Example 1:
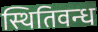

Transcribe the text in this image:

स्थितिवन्ध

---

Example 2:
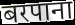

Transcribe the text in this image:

बरपाना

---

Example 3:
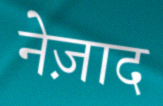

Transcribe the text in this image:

नेज़ाद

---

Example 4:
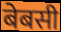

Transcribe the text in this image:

बेबसी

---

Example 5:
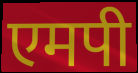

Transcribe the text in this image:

एमपी